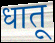
धातू